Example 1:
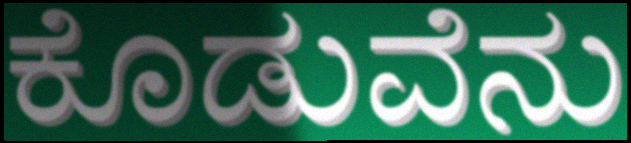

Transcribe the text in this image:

ಕೊಡುವೆನು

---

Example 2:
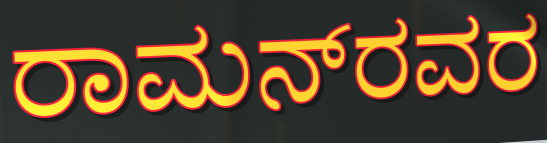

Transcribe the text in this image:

ರಾಮನ್‌ರವರ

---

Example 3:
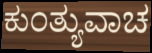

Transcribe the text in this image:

ಕುಂತ್ಯುವಾಚ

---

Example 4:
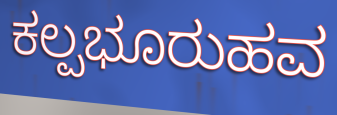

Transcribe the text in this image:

ಕಲ್ಪಭೂರುಹವ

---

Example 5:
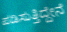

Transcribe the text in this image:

ಪಡಿಸುತ್ತಿದ್ದೇನೆ